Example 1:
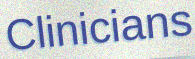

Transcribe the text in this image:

Clinicians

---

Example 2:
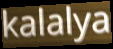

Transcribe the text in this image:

kalalya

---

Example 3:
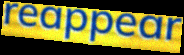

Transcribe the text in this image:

reappear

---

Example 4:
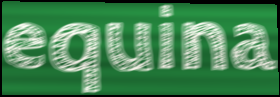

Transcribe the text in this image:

equina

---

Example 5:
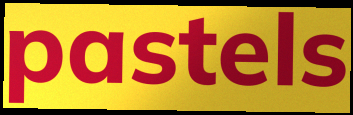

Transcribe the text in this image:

pastels